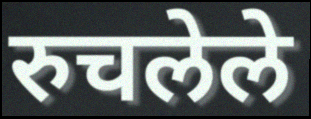
रुचलेले